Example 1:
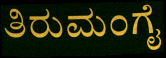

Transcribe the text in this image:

ತಿರುಮಂಗೈ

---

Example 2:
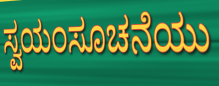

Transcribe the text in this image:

ಸ್ವಯಂಸೂಚನೆಯು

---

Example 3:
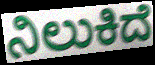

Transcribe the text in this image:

ನಿಲುಕಿದೆ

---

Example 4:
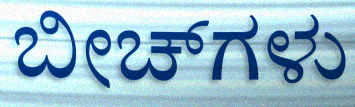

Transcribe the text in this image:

ಬೀಚ್‌ಗಳು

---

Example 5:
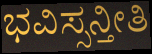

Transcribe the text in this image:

ಭವಿಸ್ಸನ್ತೀತಿ